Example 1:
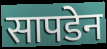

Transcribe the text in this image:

सापडेन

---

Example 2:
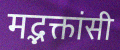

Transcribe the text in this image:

मद्भक्तांसी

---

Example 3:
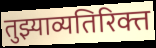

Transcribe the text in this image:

तुझ्याव्यतिरिक्त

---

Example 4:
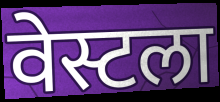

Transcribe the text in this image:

वेस्टला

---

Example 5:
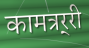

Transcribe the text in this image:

कामत्रर्री